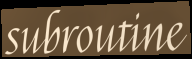
subroutine